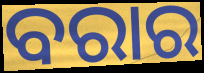
ବରାର